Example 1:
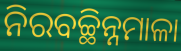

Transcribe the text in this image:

ନିରବଚ୍ଛିନ୍ନମାଳା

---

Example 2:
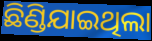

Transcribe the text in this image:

ଛିଣ୍ଡିଯାଇଥିଲା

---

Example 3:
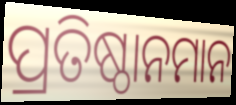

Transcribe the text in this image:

ପ୍ରତିଷ୍ଠାନମାନ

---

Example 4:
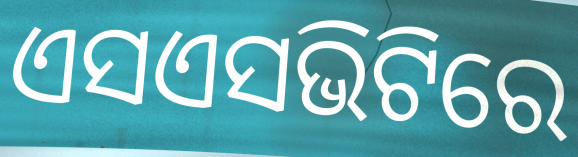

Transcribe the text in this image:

ଏସଏସଭିଟିରେ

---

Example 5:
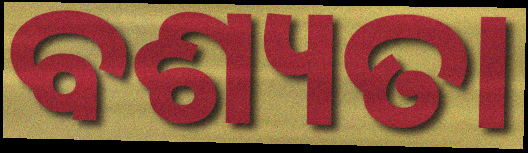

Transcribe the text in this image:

ବଶ୍ୟତା